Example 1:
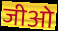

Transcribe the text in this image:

जीओ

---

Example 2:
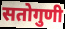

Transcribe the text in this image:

सतोगुणी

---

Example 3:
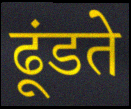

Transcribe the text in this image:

ढूंडते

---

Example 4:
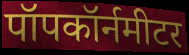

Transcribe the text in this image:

पॉपकॉर्नमीटर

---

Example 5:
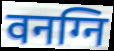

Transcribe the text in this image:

वनग्नि